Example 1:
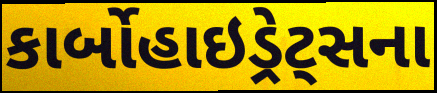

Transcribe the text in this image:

કાર્બોહાઇડ્રેટ્સના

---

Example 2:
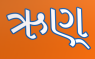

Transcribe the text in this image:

ઋણ્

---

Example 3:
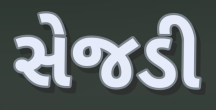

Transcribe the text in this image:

સેજડી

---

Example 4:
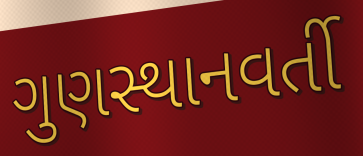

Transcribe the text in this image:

ગુણસ્થાનવર્તી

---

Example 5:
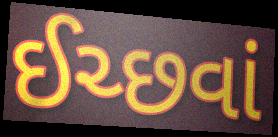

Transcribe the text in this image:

ઈચ્છવાં